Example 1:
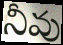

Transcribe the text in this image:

నీవు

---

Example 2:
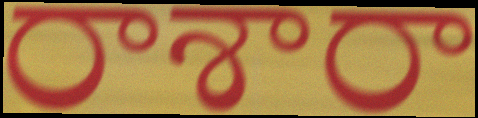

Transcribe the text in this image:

రాశారా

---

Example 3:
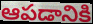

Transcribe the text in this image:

ఆపడానికి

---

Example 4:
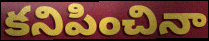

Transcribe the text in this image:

కనిపించినా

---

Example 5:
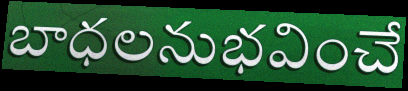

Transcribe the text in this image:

బాధలనుభవించే